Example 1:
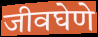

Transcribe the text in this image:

जीवघेणे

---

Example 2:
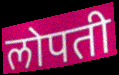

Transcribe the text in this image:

लोपती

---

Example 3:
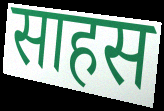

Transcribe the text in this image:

साहस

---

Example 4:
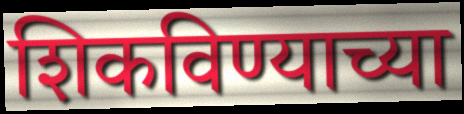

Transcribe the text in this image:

शिकविण्याच्या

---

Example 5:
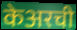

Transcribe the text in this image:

केअरची